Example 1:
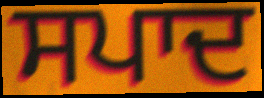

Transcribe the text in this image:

ਸਪਾਦ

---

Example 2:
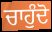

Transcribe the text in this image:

ਚਾਹੁੰਦੋ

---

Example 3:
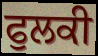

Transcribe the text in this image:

ਫੁਲਕੀ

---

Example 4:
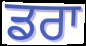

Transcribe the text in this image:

ਡਰਾ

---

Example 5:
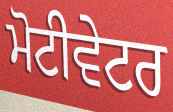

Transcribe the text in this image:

ਮੋਟੀਵੇਟਰ